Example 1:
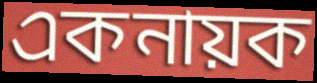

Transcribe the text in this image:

একনায়ক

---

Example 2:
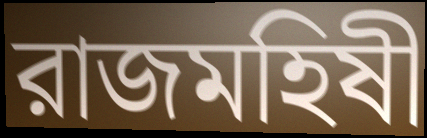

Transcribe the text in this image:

রাজমহিষী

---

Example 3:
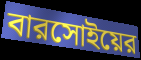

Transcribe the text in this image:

বারসোইয়ের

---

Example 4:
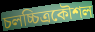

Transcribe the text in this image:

চলচ্চিত্রকৌশল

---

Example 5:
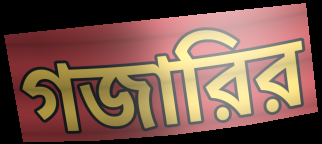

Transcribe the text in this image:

গজারির